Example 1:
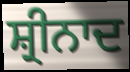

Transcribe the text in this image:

ਸ਼੍ਰੀਨਾਦ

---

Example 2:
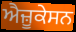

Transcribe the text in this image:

ਐਜ਼ੂਕੇਸਨ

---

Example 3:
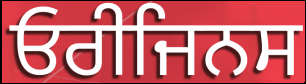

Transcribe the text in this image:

ਓਰੀਜਿਨਸ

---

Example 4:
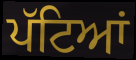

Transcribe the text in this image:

ਪੱਟਿਆਂ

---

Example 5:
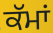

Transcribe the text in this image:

ਕੱਮਾਂ